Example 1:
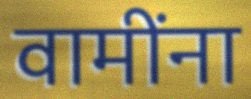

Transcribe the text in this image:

वामींना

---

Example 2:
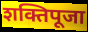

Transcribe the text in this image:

शक्तिपूजा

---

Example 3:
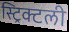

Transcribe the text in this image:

स्ट्रिक्टली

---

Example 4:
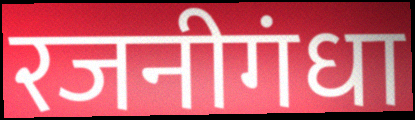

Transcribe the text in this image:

रजनीगंधा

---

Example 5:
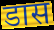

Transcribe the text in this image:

डास